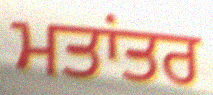
ਮਤਾਂਤਰ